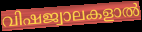
വിഷജ്വാലകളാൽ